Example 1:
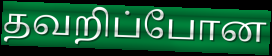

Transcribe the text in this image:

தவறிப்போன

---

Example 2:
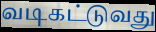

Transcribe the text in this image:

வடிகட்டுவது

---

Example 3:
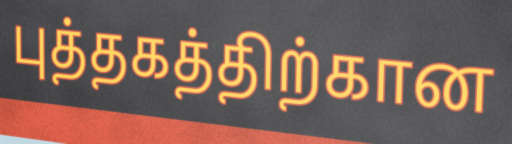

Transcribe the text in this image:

புத்தகத்திற்கான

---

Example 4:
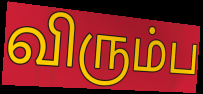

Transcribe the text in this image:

விரும்ப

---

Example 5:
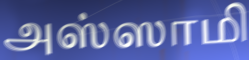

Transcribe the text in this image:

அஸ்ஸாமி